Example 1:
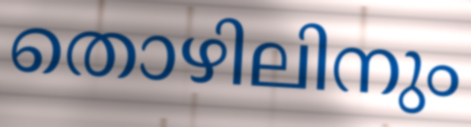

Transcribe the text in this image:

തൊഴിലിനും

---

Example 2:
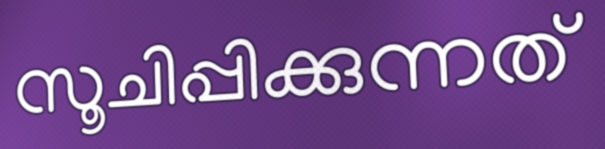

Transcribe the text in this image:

സൂചിപ്പിക്കുന്നത്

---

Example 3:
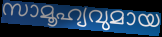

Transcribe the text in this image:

സാമൂഹ്യവുമായ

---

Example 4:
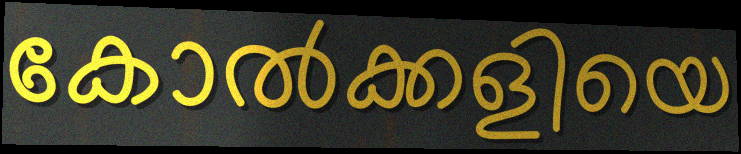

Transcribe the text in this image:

കോൽക്കളിയെ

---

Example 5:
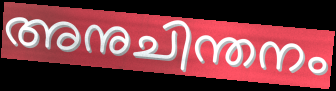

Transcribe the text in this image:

അനുചിന്തനം